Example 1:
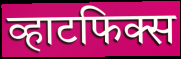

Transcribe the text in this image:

व्हाटफिक्स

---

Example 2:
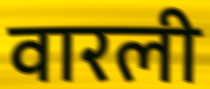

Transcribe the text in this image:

वारली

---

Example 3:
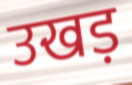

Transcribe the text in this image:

उखड़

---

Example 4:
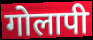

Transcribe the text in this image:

गोलापी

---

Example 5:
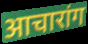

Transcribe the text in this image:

आचारांग